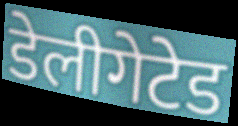
डेलीगेटेड